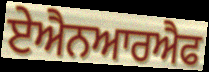
ਏਐਨਆਰਐਫ